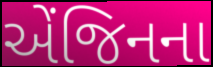
એંજિનના